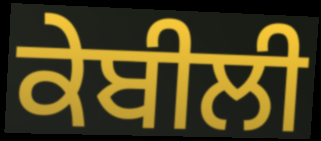
ਕੇਬੀਲੀ